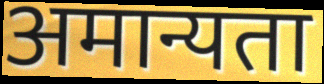
अमान्यता